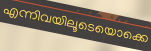
എന്നിവയിലൂടെയൊക്കെ